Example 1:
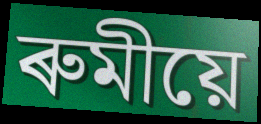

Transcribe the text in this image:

ৰুমীয়ে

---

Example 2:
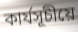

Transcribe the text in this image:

কাৰ্যসূচীয়ে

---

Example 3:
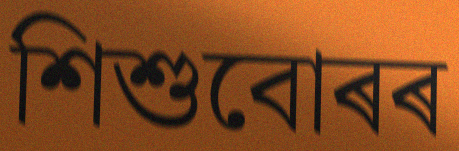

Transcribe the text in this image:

শিশুবোৰৰ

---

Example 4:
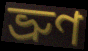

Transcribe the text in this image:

ভ্ৰুণ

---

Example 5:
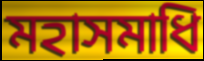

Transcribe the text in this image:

মহাসমাধি